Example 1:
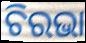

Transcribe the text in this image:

ଚିରଭା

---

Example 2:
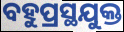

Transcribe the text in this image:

ବହୁପ୍ରସ୍ଥଯୁକ୍ତ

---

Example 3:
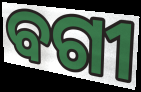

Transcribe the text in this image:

ବଗୀ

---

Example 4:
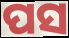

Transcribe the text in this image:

ପସ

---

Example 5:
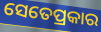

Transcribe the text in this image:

ସେତେପ୍ରକାର